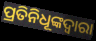
ପ୍ରତିନିଧୂଙ୍କଦ୍ଵାରା